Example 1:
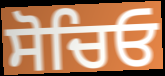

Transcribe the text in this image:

ਸੋਚਿਓ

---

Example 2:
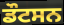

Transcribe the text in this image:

ਡੌਟਸਨ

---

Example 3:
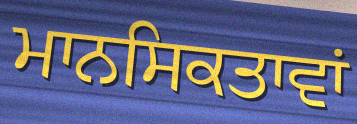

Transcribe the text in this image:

ਮਾਨਸਿਕਤਾਵਾਂ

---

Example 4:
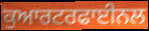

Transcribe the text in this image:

ਕੁਆਰਟਰਫਾਈਨਲ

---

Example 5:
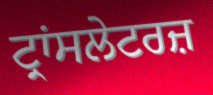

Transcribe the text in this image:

ਟ੍ਰਾਂਸਲੇਟਰਜ਼